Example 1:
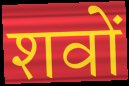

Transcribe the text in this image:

शवों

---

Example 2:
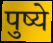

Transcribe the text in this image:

पुष्ये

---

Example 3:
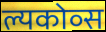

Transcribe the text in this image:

ल्यकोव्स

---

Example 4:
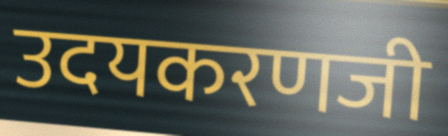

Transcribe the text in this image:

उदयकरणजी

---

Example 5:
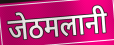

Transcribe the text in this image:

जेठमलानी